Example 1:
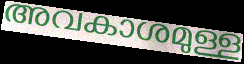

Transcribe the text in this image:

അവകാശമുള്ള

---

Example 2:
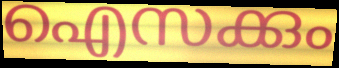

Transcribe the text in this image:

ഐസക്കും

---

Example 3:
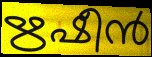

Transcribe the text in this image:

ഋഷീൻ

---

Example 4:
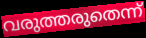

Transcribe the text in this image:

വരുത്തരുതെന്ന്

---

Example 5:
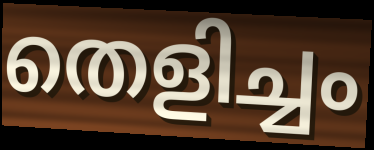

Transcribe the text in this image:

തെളിച്ചം